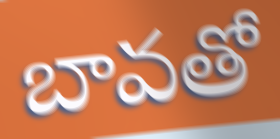
బావతో